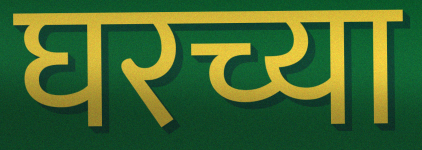
घरच्या